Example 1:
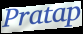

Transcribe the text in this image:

Pratap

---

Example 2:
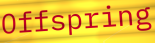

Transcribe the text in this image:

Offspring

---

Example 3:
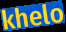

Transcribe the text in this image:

khelo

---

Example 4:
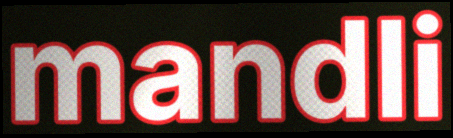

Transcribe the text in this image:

mandli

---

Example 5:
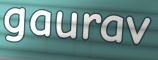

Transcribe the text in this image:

gaurav